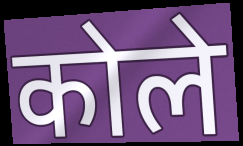
कोले